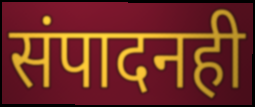
संपादनही